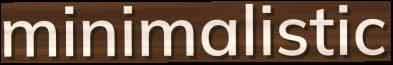
minimalistic